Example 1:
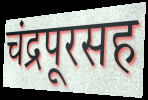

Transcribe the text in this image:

चंद्रपूरसह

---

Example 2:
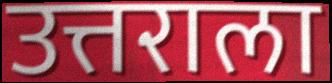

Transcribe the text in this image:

उत्तराला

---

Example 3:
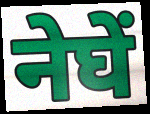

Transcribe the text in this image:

नेघें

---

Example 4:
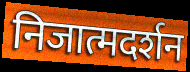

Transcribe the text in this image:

निजात्मदर्शन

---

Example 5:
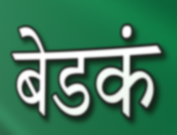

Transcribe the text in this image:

बेडकं